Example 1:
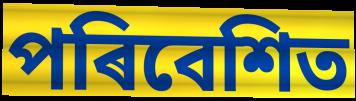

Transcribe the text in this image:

পৰিবেশিত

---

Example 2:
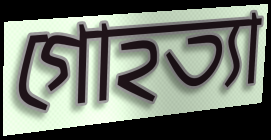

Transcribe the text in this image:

গোহত্যা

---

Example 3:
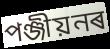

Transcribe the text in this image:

পঞ্জীয়নৰ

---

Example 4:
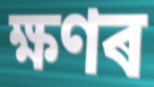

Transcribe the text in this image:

ক্ষণৰ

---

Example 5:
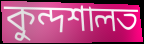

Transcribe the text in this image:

কুন্দশালত